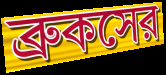
ব্রুকসের